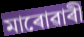
মাৰোৱাৰী